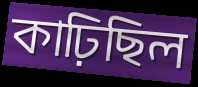
কাঢ়িছিল